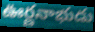
ఊర్ణనాభుడు